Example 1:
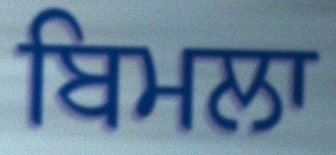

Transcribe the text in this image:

ਬਿਮਲਾ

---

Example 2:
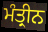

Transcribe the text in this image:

ਮੰਤ੍ਰੀਨ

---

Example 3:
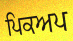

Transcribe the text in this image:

ਪਿਕਅਪ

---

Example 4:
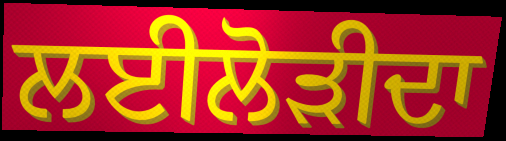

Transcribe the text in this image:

ਲਈਲੋੜੀਦਾ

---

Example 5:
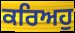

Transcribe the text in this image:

ਕਰਿਅਹੁ